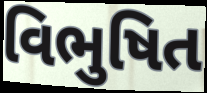
વિભુષિત